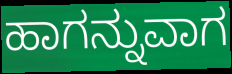
ಹಾಗನ್ನುವಾಗ